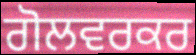
ਗੋਲਵਰਕਰ